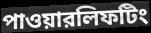
পাওয়ারলিফটিং